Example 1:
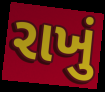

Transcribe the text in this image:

રાખું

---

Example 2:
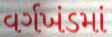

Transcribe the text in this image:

વર્ગખંડમાં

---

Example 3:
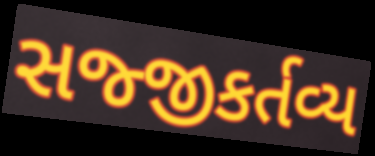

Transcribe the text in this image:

સજ્જીકર્તવ્ય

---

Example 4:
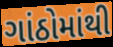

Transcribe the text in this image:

ગાંઠોમાંથી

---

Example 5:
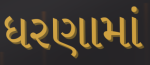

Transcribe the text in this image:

ધરણામાં